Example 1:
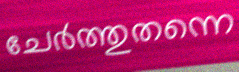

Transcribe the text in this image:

ചേർത്തുതന്നെ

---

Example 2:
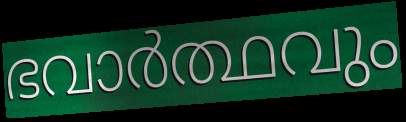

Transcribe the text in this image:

ഭവാർത്ഥവും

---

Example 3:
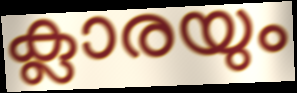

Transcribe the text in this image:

ക്ലാരയും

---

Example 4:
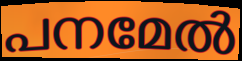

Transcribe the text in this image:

പനമേൽ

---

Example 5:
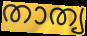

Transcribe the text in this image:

താത്യ